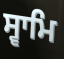
ਸ੍ਵਾਮਿ